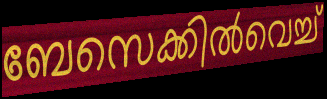
ബേസെക്കിൽവെച്ച്